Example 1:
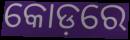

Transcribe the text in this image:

କୋଡ଼ରେ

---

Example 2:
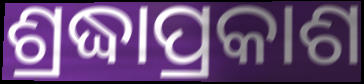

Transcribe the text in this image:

ଶ୍ରଦ୍ଧାପ୍ରକାଶ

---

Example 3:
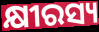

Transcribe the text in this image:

କ୍ଷୀରସ୍ୟ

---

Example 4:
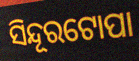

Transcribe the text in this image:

ସିନ୍ଦୂରଟୋପା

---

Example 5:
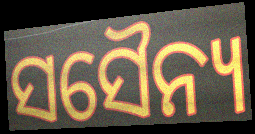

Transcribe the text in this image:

ସସୈନ୍ୟ